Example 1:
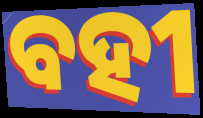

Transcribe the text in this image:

ବହୀ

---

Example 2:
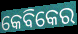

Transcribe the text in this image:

କେବିକେର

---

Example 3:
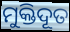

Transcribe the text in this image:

ମୁକ୍ତିଦୂତ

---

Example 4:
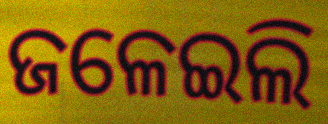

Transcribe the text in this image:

ଜଳେଇଲି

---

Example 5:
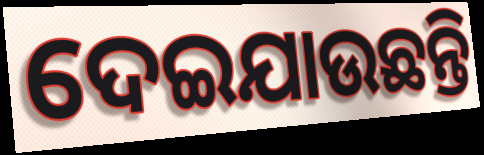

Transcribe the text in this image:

ଦେଇଯାଉଛନ୍ତି